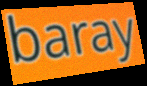
baray